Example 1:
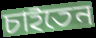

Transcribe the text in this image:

চাইতেন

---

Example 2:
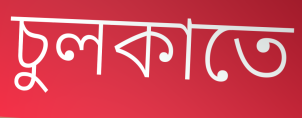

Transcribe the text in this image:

চুলকাতে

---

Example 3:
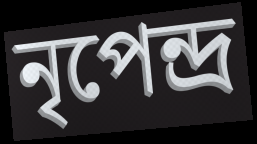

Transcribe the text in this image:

নৃপেন্দ্র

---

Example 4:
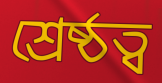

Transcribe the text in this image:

শ্রেষ্ঠত্ব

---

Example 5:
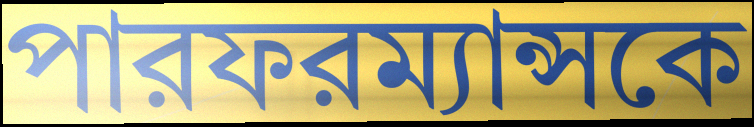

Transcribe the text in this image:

পারফরম্যান্সকে